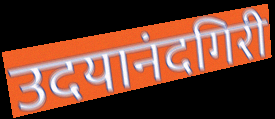
उदयानंदगिरी